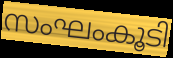
സംഘംകൂടി